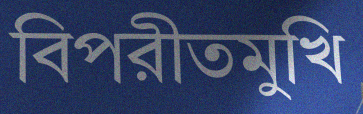
বিপরীতমুখি